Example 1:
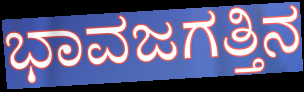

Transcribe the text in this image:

ಭಾವಜಗತ್ತಿನ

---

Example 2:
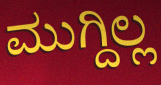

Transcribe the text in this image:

ಮುಗ್ದಿಲ್ಲ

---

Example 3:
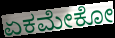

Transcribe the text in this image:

ಏಕಮೇಕೋ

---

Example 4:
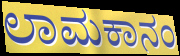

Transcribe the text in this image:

ಲಾಮಕಾನಂ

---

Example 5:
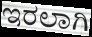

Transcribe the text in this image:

ಇರಲಾಗಿ